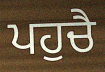
ਪਹੁਚੈ